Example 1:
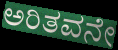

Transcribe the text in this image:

ಅರಿತವನೇ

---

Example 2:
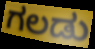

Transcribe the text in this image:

ಗಲಡು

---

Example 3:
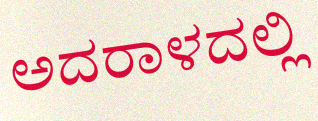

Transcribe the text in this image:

ಅದರಾಳದಲ್ಲಿ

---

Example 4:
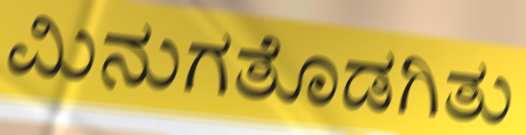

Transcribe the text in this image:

ಮಿನುಗತೊಡಗಿತು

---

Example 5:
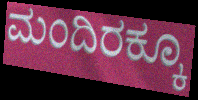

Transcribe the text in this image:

ಮಂದಿರಕ್ಕೂ